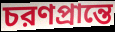
চরণপ্রান্তে